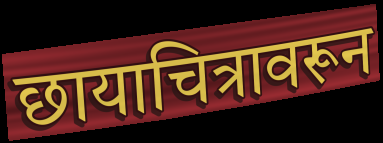
छायाचित्रावरून